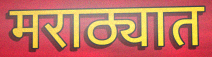
मराठ्यात